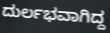
ದುರ್ಲಭವಾಗಿದ್ದ